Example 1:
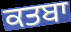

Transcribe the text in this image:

ਕਤਬਾ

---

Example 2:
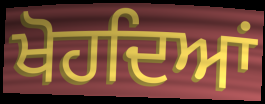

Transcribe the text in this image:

ਖੋਹਦਿਆਂ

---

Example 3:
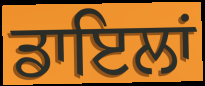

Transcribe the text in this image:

ਡਾਇਲਾਂ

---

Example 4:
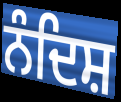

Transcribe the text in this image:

ਨੰਦਿਸ਼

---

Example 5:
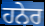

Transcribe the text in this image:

ਹਨੇਰ